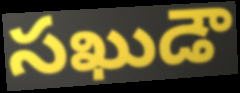
సఖుడౌ